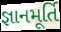
જ્ઞાનમૂર્તિ